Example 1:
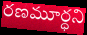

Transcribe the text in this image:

రణమూర్ధని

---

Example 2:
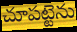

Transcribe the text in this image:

చూపట్టెను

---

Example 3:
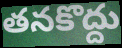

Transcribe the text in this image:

తనకొద్దు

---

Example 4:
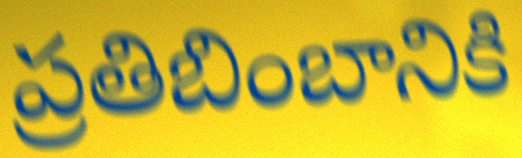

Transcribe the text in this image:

ప్రతిబింబానికి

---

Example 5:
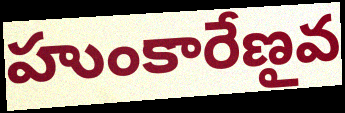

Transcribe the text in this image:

హుంకారేణౖవ